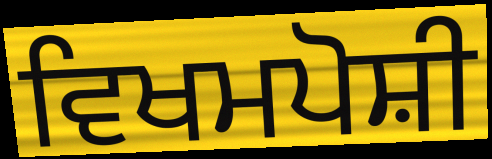
ਵਿਖਮਪੋਸ਼ੀ